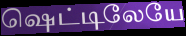
ஷெட்டிலேயே